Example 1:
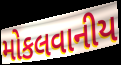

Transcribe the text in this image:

મોકલવાનીય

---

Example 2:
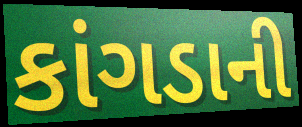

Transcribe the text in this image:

કાંગડાની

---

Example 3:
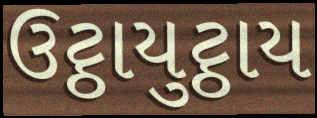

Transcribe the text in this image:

ઉટ્ઠાયુટ્ઠાય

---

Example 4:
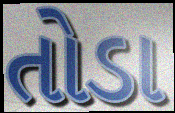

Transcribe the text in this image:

તોડા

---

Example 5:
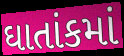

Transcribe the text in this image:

ઘાતાંકમાં